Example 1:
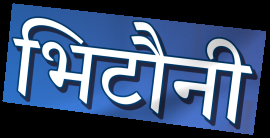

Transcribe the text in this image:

भिटौनी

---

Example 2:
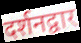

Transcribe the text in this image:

दर्शनद्वार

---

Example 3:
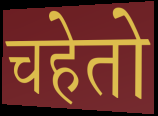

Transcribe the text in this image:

चहेतो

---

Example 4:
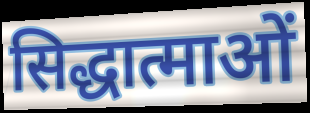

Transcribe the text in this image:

सिद्धात्माओं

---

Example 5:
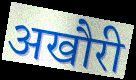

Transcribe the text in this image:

अखौरी